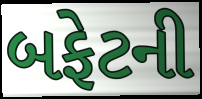
બફેટની